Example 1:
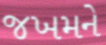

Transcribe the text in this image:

જખમને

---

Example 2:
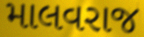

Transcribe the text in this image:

માલવરાજ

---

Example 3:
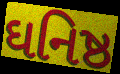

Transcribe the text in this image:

ઘનિષ્ઠ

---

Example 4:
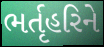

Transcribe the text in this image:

ભર્તૃહરિને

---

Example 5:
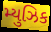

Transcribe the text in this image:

મ્યુઝિક